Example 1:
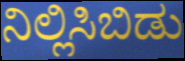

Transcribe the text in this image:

ನಿಲ್ಲಿಸಿಬಿಡು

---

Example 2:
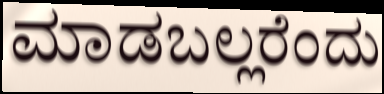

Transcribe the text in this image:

ಮಾಡಬಲ್ಲರೆಂದು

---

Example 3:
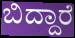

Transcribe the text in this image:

ಬಿದ್ದಾರೆ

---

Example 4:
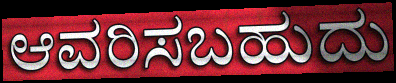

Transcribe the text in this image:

ಆವರಿಸಬಹುದು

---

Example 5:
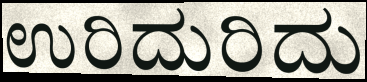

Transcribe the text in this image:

ಉರಿದುರಿದು